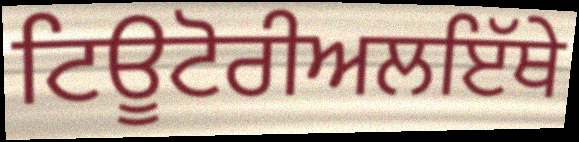
ਟਿਊਟੋਰੀਅਲਇੱਥੇ